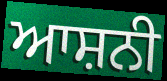
ਆਸ਼ਨੀ